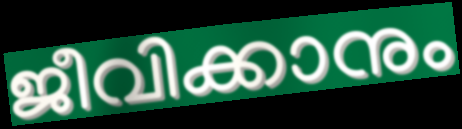
ജീവിക്കാനും